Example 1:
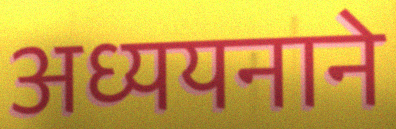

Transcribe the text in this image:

अध्ययनाने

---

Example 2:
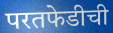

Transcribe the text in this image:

परतफेडीची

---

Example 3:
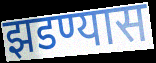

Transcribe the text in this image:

झडण्यास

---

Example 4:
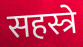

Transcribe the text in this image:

सहस्त्रे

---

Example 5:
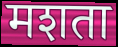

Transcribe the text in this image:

मशता